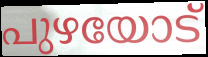
പുഴയോട്